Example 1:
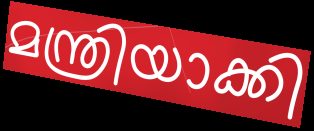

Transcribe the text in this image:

മന്ത്രിയാക്കി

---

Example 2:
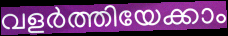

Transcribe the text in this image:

വളർത്തിയേക്കാം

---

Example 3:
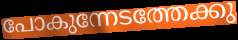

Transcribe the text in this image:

പോകുന്നേടത്തേക്കു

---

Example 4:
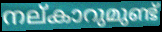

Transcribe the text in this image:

നല്കാറുമുണ്ട്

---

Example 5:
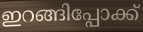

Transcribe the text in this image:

ഇറങ്ങിപ്പോക്ക്